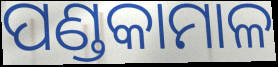
ପଣ୍ଡକାମାଳ